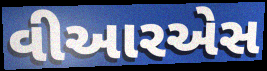
વીઆરએસ